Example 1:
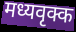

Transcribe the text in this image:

मध्यवृक्क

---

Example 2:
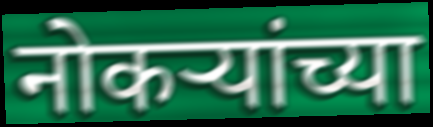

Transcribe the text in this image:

नोकर्‍यांच्या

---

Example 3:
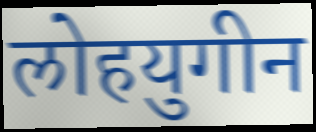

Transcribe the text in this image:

लोहयुगीन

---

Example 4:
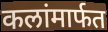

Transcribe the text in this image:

कलांमार्फत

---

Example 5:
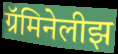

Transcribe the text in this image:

ग्रॅमिनेलीझ